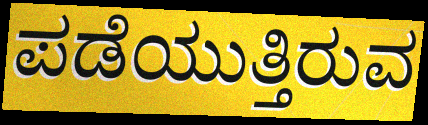
ಪಡೆಯುತ್ತಿರುವ